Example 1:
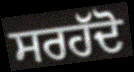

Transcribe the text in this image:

ਸਰਹੱਦੋ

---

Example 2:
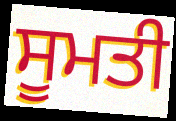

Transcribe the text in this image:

ਸੂਮਤੀ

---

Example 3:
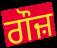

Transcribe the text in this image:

ਗੌਜ਼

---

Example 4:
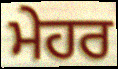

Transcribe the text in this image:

ਮੇਹਰ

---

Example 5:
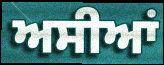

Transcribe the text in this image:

ਅਸੀਆਂ